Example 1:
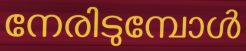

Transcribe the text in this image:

നേരിടുമ്പോൾ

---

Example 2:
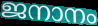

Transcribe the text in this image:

ജനാനം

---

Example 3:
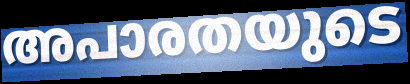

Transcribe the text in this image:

അപാരതയുടെ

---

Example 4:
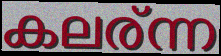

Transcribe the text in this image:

കലര്ന്ന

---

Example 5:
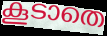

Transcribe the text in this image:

കൂടാതെ